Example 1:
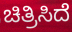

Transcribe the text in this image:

ಚಿತ್ರಿಸಿದೆ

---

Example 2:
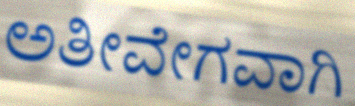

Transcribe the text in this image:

ಅತೀವೇಗವಾಗಿ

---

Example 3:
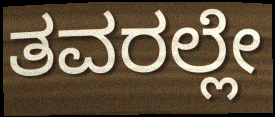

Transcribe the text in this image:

ತವರಲ್ಲೇ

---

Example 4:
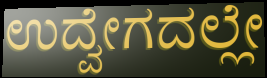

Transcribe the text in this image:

ಉದ್ವೇಗದಲ್ಲೇ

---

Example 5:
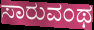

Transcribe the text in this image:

ಸಾರುವಂಥ